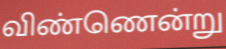
விண்ணென்று